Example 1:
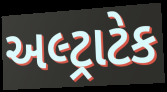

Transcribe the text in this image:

અલ્ટ્રાટેક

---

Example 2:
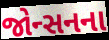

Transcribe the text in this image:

જોન્સનના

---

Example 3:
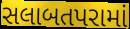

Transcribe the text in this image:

સલાબતપરામાં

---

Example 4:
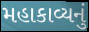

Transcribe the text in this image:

મહાકાવ્યનું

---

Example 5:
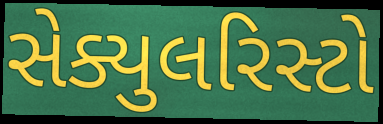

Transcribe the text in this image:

સેક્યુલરિસ્ટો